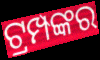
ଟ୍ରମ୍ପଙ୍କର